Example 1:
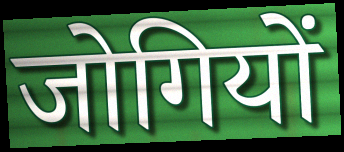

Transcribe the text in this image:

जोगियों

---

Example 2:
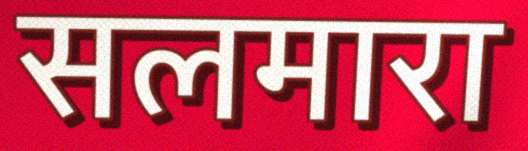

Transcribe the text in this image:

सलमारा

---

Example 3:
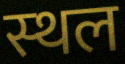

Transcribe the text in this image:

स्‍थल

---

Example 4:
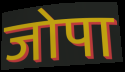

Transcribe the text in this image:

जोपा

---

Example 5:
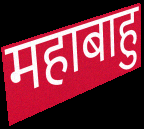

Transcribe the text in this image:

महाबाहु